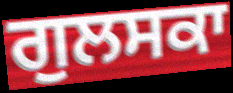
ਗੁਲਸਕਾ